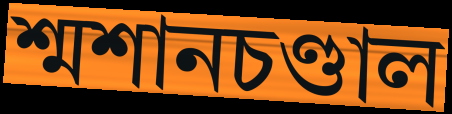
শ্মশানচণ্ডাল